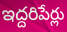
ఇద్దరిపేర్లు